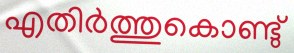
എതിർത്തുകൊണ്ടു്